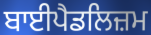
ਬਾਈਪੈਡਲਿਜ਼ਮ